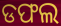
ଡଫଲ